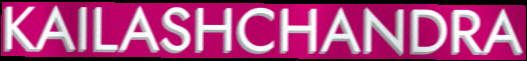
KAILASHCHANDRA